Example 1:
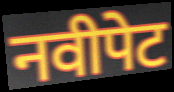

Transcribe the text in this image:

नवीपेट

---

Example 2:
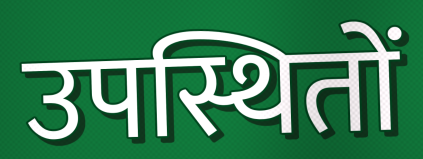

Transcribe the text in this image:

उपस्थितों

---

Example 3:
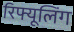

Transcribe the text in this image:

रिफ्यूलिंग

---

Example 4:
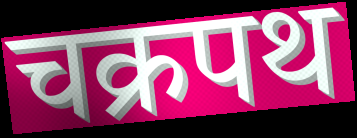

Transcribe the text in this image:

चक्रपथ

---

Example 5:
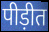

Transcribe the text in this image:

पीड़ीत